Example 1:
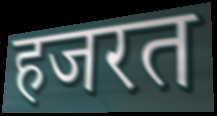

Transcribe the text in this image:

हजरत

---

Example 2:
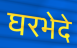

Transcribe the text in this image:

घरभेदे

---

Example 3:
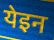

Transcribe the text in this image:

येइन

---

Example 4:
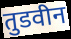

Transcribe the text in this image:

तुडवीन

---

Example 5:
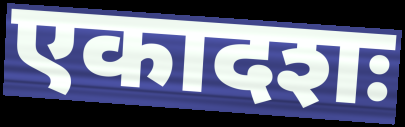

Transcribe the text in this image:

एकादशः